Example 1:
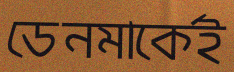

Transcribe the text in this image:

ডেনমার্কেই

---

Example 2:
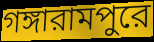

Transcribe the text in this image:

গঙ্গারামপুরে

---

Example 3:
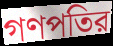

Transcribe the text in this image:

গণপতির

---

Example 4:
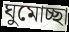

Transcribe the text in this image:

ঘুমোচ্ছা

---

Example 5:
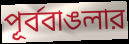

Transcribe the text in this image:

পূর্ববাঙলার